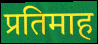
प्रतिमाह